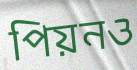
পিয়নও